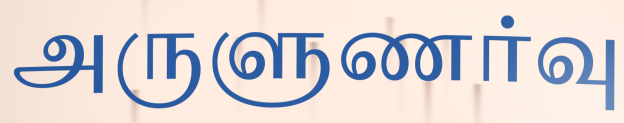
அருளுணர்வு